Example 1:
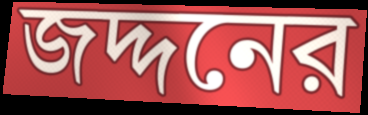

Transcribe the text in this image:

জদ্দনের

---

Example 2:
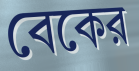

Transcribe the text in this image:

বেকের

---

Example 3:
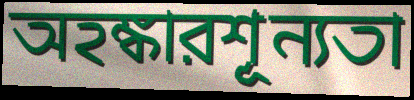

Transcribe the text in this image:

অহঙ্কারশূন্যতা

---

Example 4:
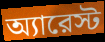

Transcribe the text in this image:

অ্যারেস্ট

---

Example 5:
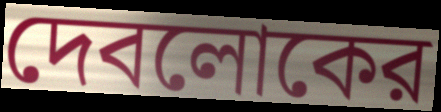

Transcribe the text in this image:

দেবলোকের